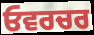
ਓਵਰਚਰ